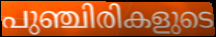
പുഞ്ചിരികളുടെ